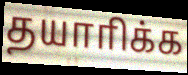
தயாரிக்க